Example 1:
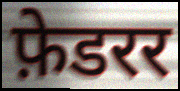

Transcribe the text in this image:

फ़ेडरर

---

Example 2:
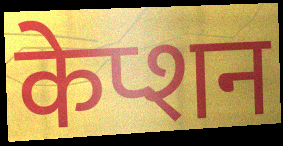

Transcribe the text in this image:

केप्शन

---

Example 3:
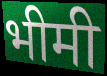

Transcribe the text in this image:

भीमी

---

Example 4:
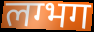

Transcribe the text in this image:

लग्भग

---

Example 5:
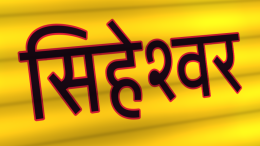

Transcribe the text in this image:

सिहेश्वर